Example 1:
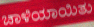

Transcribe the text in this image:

ಚಾಳಿಯಾಯಿತು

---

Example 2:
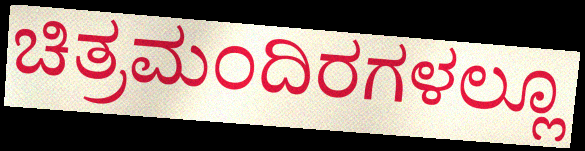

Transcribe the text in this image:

ಚಿತ್ರಮಂದಿರಗಳಲ್ಲೂ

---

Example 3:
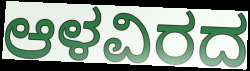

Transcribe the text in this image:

ಆಳವಿರದ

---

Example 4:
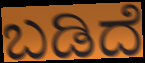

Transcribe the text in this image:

ಬಡಿದೆ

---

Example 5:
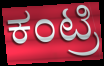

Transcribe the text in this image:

ಕಂಟ್ರಿ